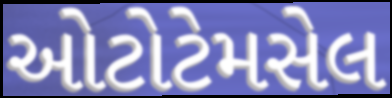
ઓટોટેમસેલ